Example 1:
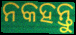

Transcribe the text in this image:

ନକହନ୍ତୁ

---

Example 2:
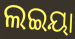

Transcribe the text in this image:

ଲଇୟା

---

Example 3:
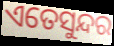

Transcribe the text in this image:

ଏତେସୁନ୍ଦର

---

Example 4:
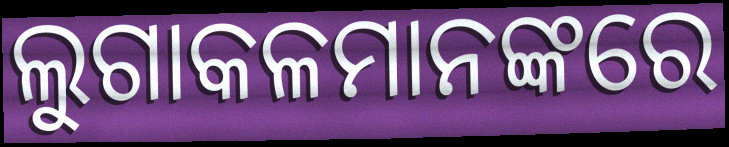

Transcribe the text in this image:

ଲୁଗାକଳମାନଙ୍କରେ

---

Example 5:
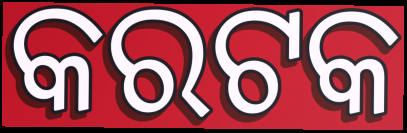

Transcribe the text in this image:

କରଟକ